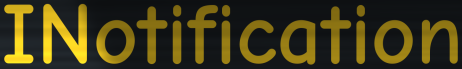
INotification